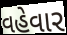
વહેવાર